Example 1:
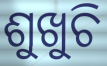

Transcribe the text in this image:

ଶୁଖୁଚି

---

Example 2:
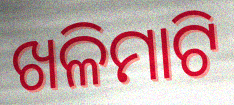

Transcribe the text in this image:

ଖଳିମାଟି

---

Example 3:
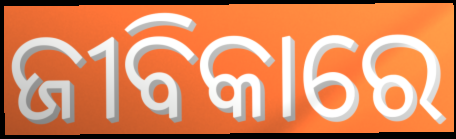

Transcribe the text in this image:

ଜୀବିକାରେ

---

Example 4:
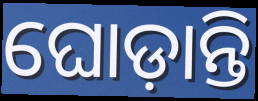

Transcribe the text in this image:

ଘୋଡ଼ାନ୍ତି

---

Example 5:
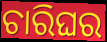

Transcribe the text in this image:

ଚାରିଘର